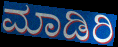
ಮಾಡಿರಿ